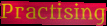
Practising